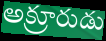
అక్రూరుడు